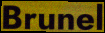
Brunel